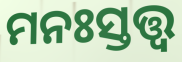
ମନଃସ୍ତତ୍ତ୍ଵ